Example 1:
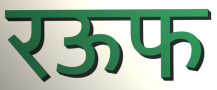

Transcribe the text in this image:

रऊफ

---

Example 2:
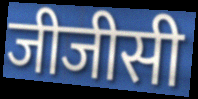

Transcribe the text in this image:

जीजीसी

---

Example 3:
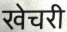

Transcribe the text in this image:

खेचरी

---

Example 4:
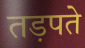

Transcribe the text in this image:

तड़पते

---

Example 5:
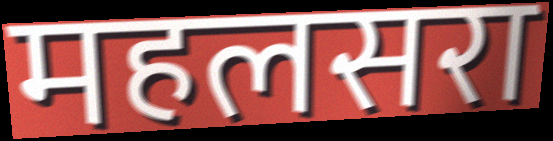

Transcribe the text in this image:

महलसरा